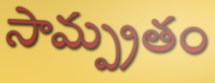
సామ్ప్రతం